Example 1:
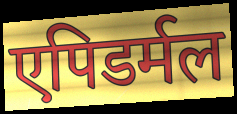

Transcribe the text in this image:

एपिडर्मल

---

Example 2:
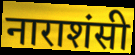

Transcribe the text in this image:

नाराशंसी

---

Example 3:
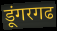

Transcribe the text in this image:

डूंगरगढ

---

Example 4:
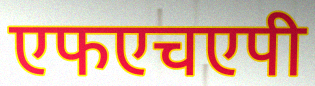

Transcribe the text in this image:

एफएचएपी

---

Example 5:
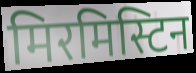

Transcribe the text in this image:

मिरमिस्टिन